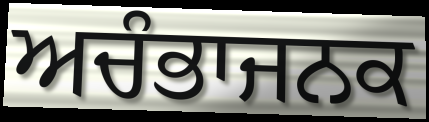
ਅਚੰਭਾਜਨਕ